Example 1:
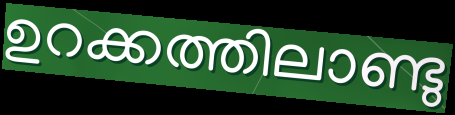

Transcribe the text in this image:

ഉറക്കത്തിലാണ്ടു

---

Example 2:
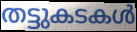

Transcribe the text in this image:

തട്ടുകടകൾ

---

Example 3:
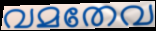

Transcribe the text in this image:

വമതേവ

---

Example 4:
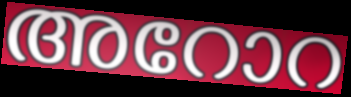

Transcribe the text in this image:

അറോറ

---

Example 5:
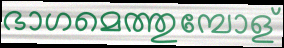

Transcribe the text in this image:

ഭാഗമെത്തുമ്പോള്